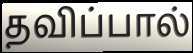
தவிப்பால்